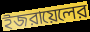
ইজরায়েলের